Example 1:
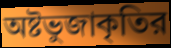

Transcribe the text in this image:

অষ্টভুজাকৃতির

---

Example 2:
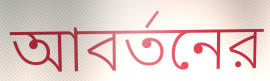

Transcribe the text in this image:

আবর্তনের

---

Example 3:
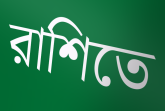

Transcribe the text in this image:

রাশিতে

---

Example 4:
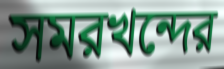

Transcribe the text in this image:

সমরখন্দের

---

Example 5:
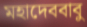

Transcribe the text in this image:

মহাদেববাবু